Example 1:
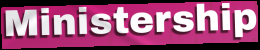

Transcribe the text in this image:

Ministership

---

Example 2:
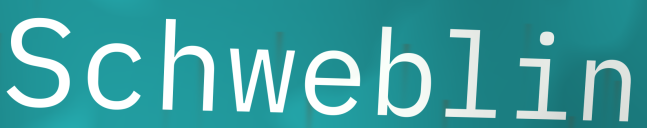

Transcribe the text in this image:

Schweblin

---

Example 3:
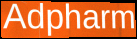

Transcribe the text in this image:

Adpharm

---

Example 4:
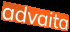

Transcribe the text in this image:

advaita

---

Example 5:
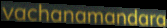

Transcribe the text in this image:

vachanamandara